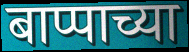
बाप्पाच्या